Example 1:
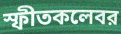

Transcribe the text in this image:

স্ফীতকলেবর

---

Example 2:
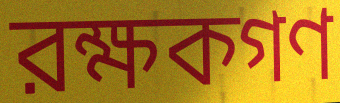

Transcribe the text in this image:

রক্ষকগণ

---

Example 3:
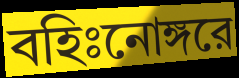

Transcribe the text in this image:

বহিঃনোঙ্গরে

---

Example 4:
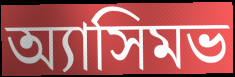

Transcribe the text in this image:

অ্যাসিমভ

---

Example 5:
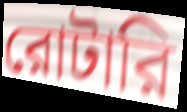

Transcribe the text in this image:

রোটারি